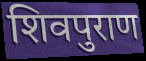
शिवपुराण